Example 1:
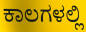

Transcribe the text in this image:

ಕಾಲಗಳಲ್ಲಿ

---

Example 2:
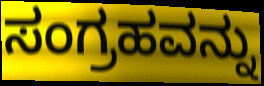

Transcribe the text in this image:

ಸಂಗ್ರಹವನ್ನು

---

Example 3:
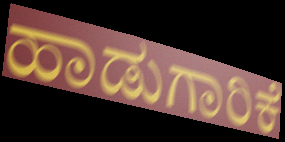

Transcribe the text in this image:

ಹಾಡುಗಾರಿಕೆ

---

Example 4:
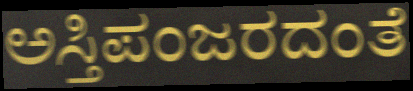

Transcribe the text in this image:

ಅಸ್ತಿಪಂಜರದಂತೆ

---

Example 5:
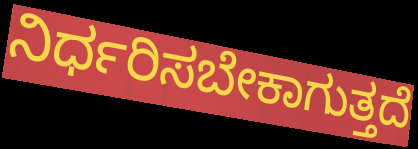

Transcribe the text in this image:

ನಿರ್ಧರಿಸಬೇಕಾಗುತ್ತದೆ